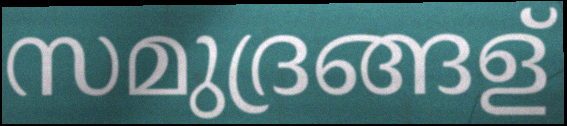
സമുദ്രങ്ങള്